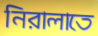
নিরালাতে